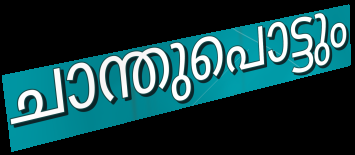
ചാന്തുപൊട്ടും